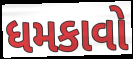
ધમકાવો